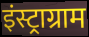
इंस्ट्राग्राम